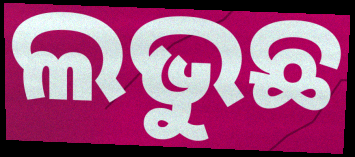
ଲଭୁଛ